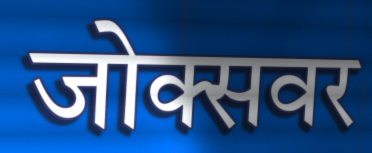
जोक्सवर